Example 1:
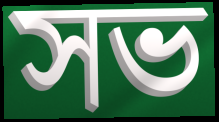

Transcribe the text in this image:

সভ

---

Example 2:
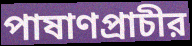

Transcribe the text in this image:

পাষাণপ্রাচীর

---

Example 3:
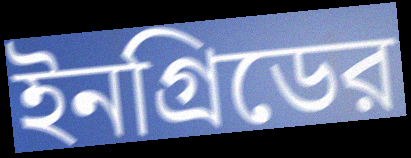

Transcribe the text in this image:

ইনগ্রিডের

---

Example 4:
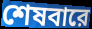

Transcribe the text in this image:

শেষবারে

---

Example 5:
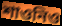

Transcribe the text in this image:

শাওনিও